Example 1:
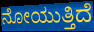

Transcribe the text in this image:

ನೋಯುತ್ತಿದೆ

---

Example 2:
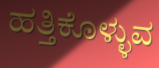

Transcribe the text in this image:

ಹತ್ತಿಕೊಳ್ಳುವ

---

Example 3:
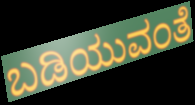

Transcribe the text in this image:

ಬಡಿಯುವಂತೆ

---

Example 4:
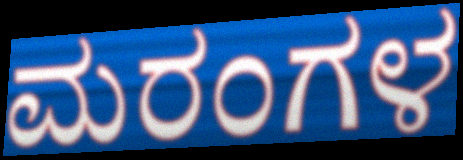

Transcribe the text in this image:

ಮರಂಗಳ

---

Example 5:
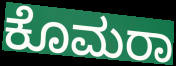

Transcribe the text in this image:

ಕೊಮರಾ